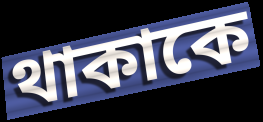
থাকাকে